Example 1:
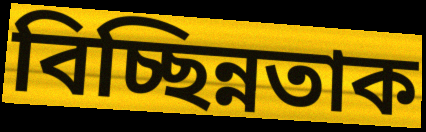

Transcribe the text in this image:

বিচ্ছিন্নতাক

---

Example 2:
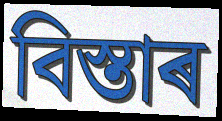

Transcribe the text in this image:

বিস্তাৰ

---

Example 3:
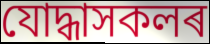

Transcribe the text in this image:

যোদ্ধাসকলৰ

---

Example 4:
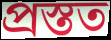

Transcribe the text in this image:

প্ৰস্তত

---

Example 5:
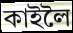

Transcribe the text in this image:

কাইলৈ